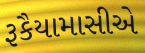
રૂકૈયામાસીએ